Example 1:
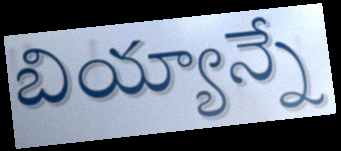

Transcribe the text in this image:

బియ్యాన్నే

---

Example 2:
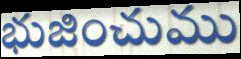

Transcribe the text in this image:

భుజించుము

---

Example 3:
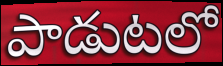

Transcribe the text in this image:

పాడుటలో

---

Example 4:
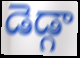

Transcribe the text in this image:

డెడ్గా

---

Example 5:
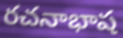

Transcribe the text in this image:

రచనాభాష